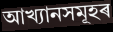
আখ্যানসমূহৰ